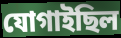
যোগাইছিল